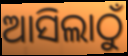
ଆସିଲାଠୁଁ